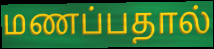
மணப்பதால்